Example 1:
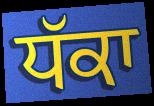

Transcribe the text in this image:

ਧੱਕਾ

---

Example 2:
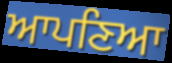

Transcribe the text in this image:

ਆਪਣਿਆ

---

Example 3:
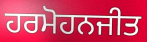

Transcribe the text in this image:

ਹਰਮੋਹਨਜੀਤ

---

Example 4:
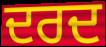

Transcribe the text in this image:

ਦਰਦ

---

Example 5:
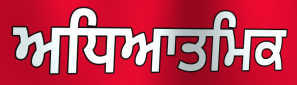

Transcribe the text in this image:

ਅਧਿਆਤਮਿਕ